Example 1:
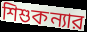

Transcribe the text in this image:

শিশুকন্যার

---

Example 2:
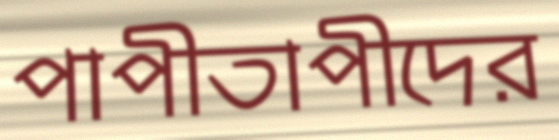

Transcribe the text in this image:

পাপীতাপীদের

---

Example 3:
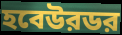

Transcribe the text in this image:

হবেউরডর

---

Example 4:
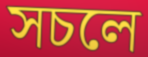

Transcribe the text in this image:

সচলে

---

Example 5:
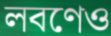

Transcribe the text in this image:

লবণেও